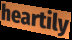
heartily